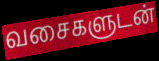
வசைகளுடன்